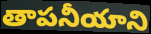
తాపనీయాని